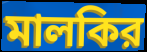
মালকির